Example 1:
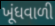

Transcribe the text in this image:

ખૂંધવાળી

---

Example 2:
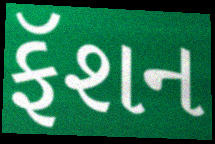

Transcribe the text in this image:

ફૅશન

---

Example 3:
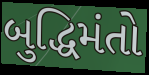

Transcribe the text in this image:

બુદ્ધિમંતો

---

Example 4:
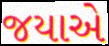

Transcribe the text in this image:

જયાએ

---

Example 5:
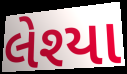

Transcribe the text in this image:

લેશ્યા